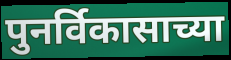
पुनर्विकासाच्या